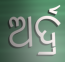
ଅର୍ଦ୍ର